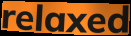
relaxed